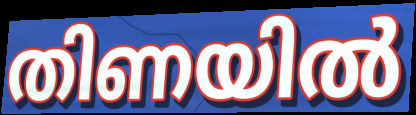
തിണയിൽ